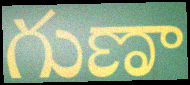
గుణా